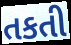
તકતી